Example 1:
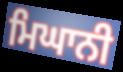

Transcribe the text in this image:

ਮਿਘਾਨੀ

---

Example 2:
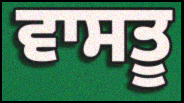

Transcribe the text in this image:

ਵਾਸਤੂ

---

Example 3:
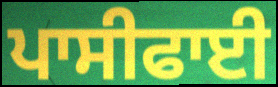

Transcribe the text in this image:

ਪਾਸੀਫਾਈ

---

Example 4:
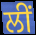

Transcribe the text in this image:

ਲੀਂ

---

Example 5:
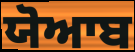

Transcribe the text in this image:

ਯੋਆਬ